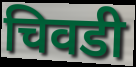
चिवडी